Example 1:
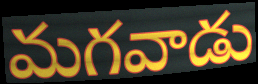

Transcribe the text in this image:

మగవాడు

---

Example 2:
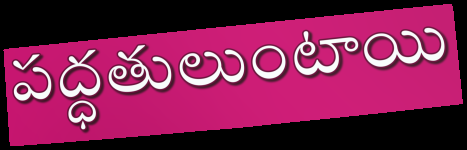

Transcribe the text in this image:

పద్ధతులుంటాయి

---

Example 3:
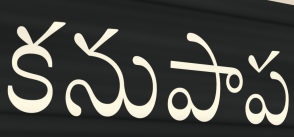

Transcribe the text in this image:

కనుపాప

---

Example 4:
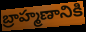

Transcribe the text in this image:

బ్రాహ్మణానికి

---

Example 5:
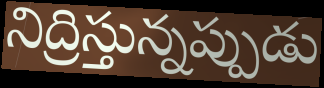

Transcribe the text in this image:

నిద్రిస్తున్నప్పుడు